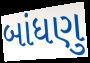
બાંધણુ